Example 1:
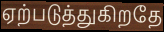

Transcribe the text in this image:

ஏற்படுத்துகிறதே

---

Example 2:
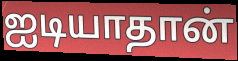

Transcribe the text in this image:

ஐடியாதான்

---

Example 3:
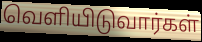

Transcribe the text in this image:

வெளியிடுவார்கள்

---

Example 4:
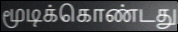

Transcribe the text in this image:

மூடிக்கொண்டது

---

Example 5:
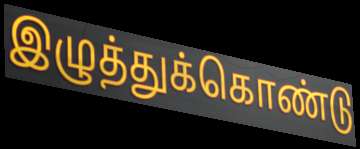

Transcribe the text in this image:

இழுத்துக்கொண்டு